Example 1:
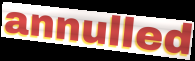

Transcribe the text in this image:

annulled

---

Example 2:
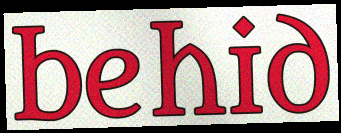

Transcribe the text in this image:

behid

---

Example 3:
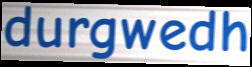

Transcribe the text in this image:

durgwedh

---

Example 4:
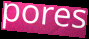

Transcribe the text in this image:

pores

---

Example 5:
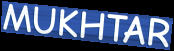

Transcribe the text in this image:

MUKHTAR